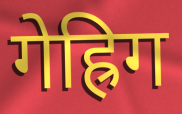
गेह्रिग